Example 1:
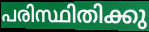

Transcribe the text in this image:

പരിസ്ഥിതിക്കു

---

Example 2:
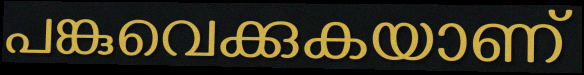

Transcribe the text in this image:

പങ്കുവെക്കുകയാണ്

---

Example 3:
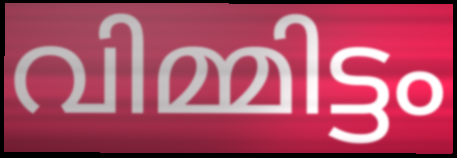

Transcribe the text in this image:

വിമ്മിട്ടം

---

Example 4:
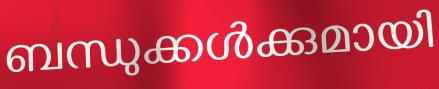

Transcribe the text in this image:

ബന്ധുക്കൾക്കുമായി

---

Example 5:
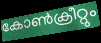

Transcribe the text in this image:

കോൺക്രീറ്റും